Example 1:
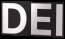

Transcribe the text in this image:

DEI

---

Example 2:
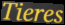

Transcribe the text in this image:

Tieres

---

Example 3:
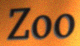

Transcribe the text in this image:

Zoo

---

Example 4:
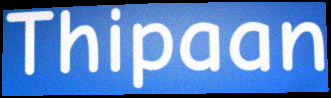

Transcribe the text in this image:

Thipaan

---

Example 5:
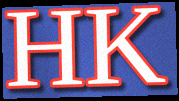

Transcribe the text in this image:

HK